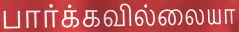
பார்க்கவில்லையா